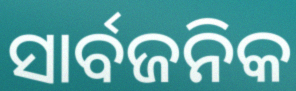
ସାର୍ବଜନିକ